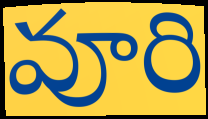
వూరి